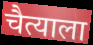
चैत्याला